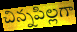
చిన్నపిల్లగా